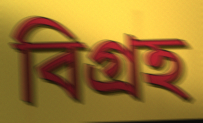
বিগ্রহ